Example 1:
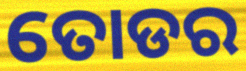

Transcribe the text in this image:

ତୋଡର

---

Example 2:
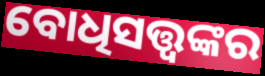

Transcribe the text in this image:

ବୋଧିସତ୍ତ୍ଵଙ୍କର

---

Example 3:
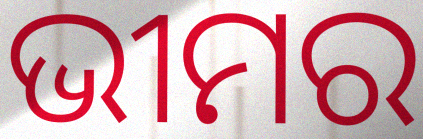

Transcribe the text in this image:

ଭୀମର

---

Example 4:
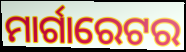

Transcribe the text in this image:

ମାର୍ଗାରେଟର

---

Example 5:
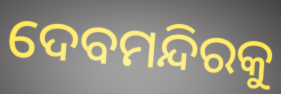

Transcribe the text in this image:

ଦେବମନ୍ଦିରକୁ